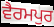
ਵੈਰਮਪੁਰ